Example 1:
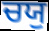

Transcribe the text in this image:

ਚਯੁ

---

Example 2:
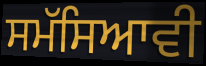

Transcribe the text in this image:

ਸਮੱਸਿਆਵੀ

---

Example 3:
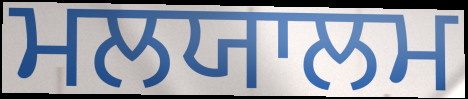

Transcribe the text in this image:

ਮਲਯਾਲਮ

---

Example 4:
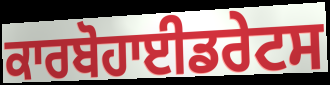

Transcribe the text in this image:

ਕਾਰਬੋਹਾਈਡਰੇਟਸ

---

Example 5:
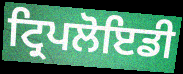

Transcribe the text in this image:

ਟ੍ਰਿਪਲੋਇਡੀ